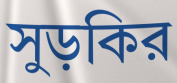
সুড়কির